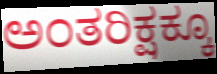
ಅಂತರಿಕ್ಷಕ್ಕೂ